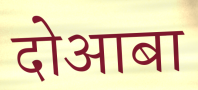
दोआबा